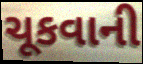
ચૂકવાની